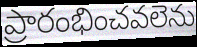
ప్రారంభించవలెను